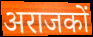
अराजकों